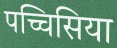
पच्चिसिया